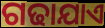
ଗଢାଯାଏ